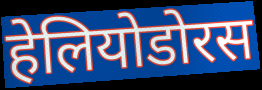
हेलियोडोरस